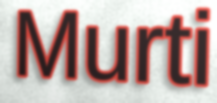
Murti